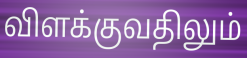
விளக்குவதிலும்